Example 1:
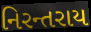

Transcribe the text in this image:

નિરન્તરાય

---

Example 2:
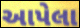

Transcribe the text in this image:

આપેલા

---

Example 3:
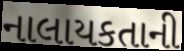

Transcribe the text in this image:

નાલાયકતાની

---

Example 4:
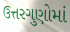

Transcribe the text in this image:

ઉત્તરગુણોમાં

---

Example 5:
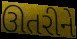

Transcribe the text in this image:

ઊતરીને